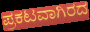
ಪ್ರಕಟವಾಗಿರದ